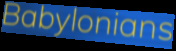
Babylonians